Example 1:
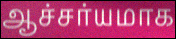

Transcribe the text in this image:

ஆச்சர்யமாக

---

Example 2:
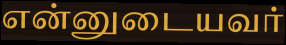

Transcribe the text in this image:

என்னுடையவர்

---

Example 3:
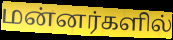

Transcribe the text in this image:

மன்னர்களில்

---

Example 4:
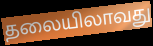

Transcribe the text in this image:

தலையிலாவது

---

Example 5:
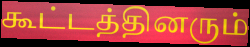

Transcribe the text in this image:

கூட்டத்தினரும்